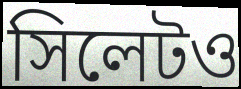
সিলেটও